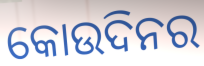
କୋଉଦିନର